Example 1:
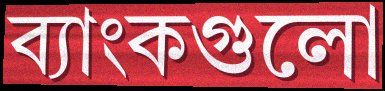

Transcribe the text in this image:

ব্যাংকগুলো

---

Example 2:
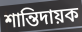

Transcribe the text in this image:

শান্তিদায়ক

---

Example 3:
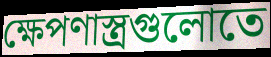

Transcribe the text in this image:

ক্ষেপণাস্ত্রগুলোতে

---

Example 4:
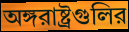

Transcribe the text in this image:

অঙ্গরাষ্ট্রগুলির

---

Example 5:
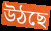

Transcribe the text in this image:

উঠছে